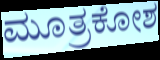
ಮೂತ್ರಕೋಶ